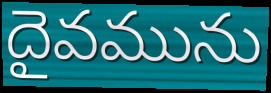
దైవమును